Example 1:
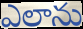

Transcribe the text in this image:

ఎలాను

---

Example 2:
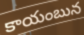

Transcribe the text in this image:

కాయంబున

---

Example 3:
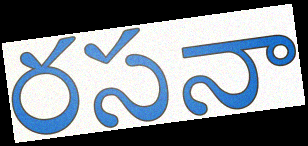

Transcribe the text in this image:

రసనా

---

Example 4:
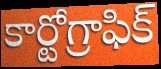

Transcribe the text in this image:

కార్టోగ్రాఫిక్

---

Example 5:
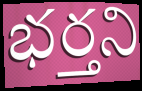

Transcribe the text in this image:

భర్తని